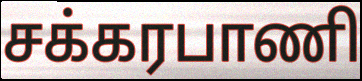
சக்கரபாணி